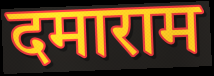
दमाराम